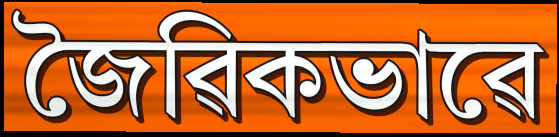
জৈৱিকভাৱে